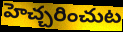
హెచ్చరించుట